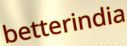
betterindia